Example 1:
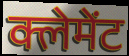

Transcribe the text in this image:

क्लेमेंट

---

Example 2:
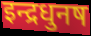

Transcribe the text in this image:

इन्द्रधुनष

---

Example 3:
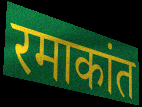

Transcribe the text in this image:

रमाकांत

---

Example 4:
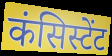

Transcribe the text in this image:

कंसिस्टेंट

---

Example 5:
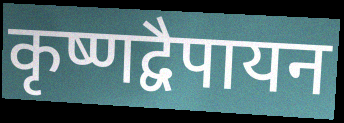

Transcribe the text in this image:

कृष्णद्वैपायन